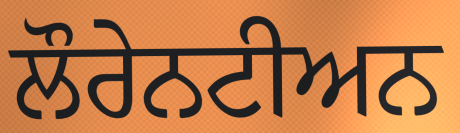
ਲੌਰੇਨਟੀਅਨ